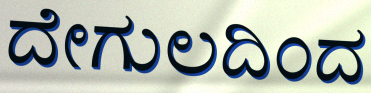
ದೇಗುಲದಿಂದ